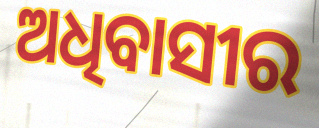
ଅଧିବାସୀର